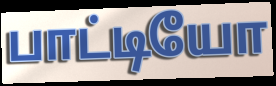
பாட்டியோ